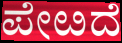
ಪೇೞದೆ